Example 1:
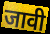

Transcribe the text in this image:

जावी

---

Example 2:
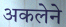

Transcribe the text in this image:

अकलेने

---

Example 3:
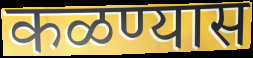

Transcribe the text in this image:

कळण्यास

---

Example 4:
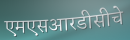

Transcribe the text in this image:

एमएसआरडीसीचे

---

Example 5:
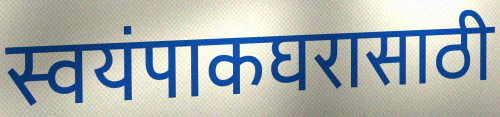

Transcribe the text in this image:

स्वयंपाकघरासाठी